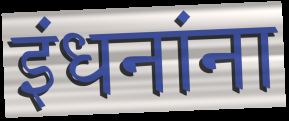
इंधनांना